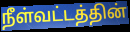
நீள்வட்டத்தின்